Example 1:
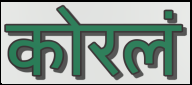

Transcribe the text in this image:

कोरलं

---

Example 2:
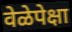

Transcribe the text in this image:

वेळेपेक्षा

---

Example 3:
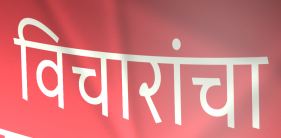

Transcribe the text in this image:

विचारांचा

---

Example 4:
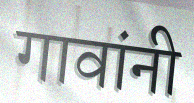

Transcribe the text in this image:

गावांनी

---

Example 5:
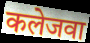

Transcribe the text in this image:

कलेजवा